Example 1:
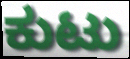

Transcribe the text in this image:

ಕುಟು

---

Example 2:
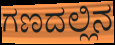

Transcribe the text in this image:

ಗಣದಲ್ಲಿನ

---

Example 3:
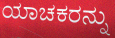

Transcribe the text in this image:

ಯಾಚಕರನ್ನು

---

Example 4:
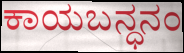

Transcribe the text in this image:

ಕಾಯಬನ್ಧನಂ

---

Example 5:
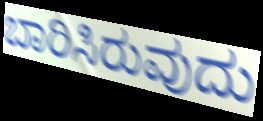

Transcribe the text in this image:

ಬಾರಿಸಿರುವುದು